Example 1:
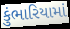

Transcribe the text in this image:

કુંભારિયામાં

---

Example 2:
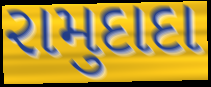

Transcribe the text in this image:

રામુદાદા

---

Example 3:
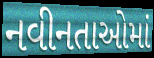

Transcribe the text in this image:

નવીનતાઓમાં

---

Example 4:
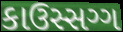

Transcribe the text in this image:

કાઉસ્સગ્ગ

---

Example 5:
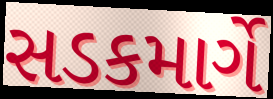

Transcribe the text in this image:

સડકમાર્ગે